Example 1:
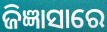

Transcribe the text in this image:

ଜିଜ୍ଞାସାରେ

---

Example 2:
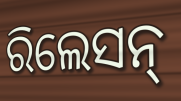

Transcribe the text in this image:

ରିଲେସନ୍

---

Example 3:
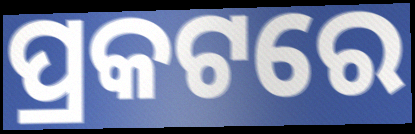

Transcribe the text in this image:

ପ୍ରକଟରେ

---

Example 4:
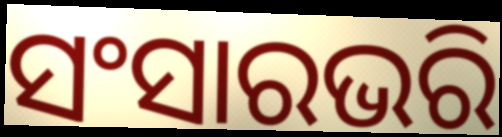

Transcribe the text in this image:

ସଂସାରଭରି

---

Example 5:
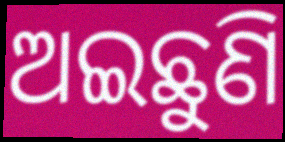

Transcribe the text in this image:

ଅଇଛୁଣି